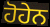
ਹੋਹੇਨ